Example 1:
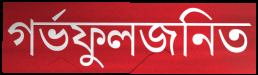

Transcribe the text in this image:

গর্ভফুলজনিত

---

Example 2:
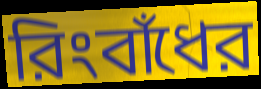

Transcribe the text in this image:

রিংবাঁধের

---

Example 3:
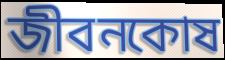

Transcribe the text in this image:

জীবনকোষ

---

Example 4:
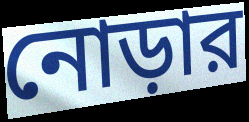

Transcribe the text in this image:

নোড়ার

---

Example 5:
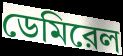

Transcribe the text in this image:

ডেমিরেল